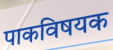
पाकविषयक